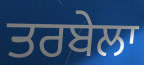
ਤਰਬੇਲਾ